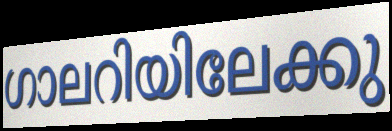
ഗാലറിയിലേക്കു